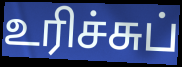
உரிச்சுப்